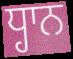
ਧ੍ਹਾਨ